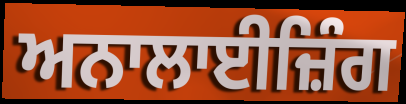
ਅਨਾਲਾਈਜ਼ਿੰਗ